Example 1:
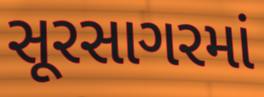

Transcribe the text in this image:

સૂરસાગરમાં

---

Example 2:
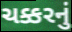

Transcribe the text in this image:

ચક્કરનું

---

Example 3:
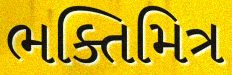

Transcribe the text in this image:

ભક્તિમિત્ર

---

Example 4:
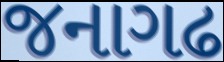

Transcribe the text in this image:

જનાગઢ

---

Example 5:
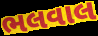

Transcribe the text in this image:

ભલવાલ